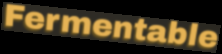
Fermentable